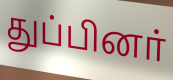
துப்பினர்